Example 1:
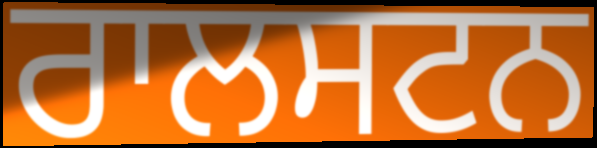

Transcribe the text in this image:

ਰਾਲਸਟਨ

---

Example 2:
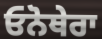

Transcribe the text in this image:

ਓਨੋਥੇਰਾ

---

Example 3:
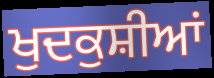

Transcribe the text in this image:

ਖੁਦਕੁਸ਼ੀਆਂ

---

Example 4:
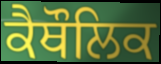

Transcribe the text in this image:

ਕੈਥੌਲਿਕ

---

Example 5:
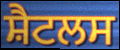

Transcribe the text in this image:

ਸ਼ੈਟਲਸ